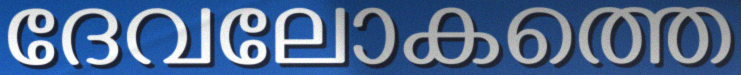
ദേവലോകത്തെ